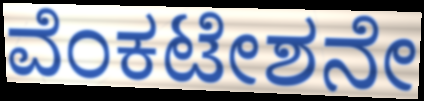
ವೆಂಕಟೇಶನೇ